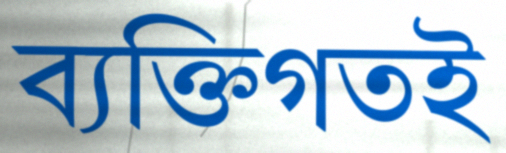
ব্যক্তিগতই